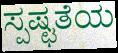
ಸ್ಪಷ್ಟತೆಯ